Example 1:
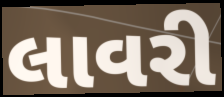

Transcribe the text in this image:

લાવરી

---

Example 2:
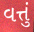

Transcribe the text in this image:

વત્તું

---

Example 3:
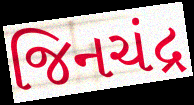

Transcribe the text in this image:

જિનચંદ્ર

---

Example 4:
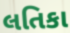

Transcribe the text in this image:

લતિકા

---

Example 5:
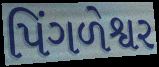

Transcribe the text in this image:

પિંગળેશ્વર